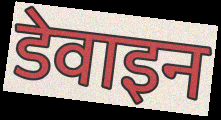
डेवाइन